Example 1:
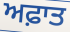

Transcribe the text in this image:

ਅਫ਼ਾਤ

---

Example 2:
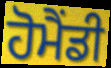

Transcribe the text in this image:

ਹੋਮੈਂਡੀ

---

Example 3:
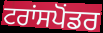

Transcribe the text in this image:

ਟਰਾਂਸਪੋਂਡਰ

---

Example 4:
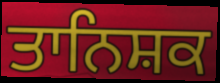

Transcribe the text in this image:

ਤਾਨਿਸ਼ਕ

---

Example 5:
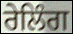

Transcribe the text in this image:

ਰੇਲਿੰਗ